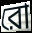
রো